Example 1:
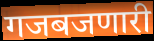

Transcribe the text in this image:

गजबजणारी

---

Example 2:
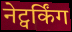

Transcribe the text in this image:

नेट्वर्किंग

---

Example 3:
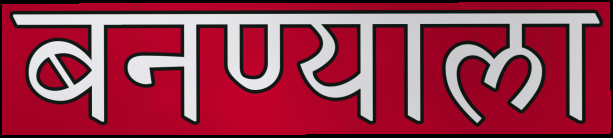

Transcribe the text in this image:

बनण्याला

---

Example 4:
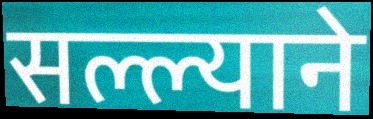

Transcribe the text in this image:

सल्ल्याने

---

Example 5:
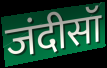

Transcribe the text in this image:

जंदीसॉ